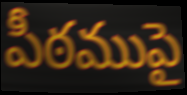
పీఠముపై